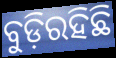
ବୁଡ଼ିରହିଛି